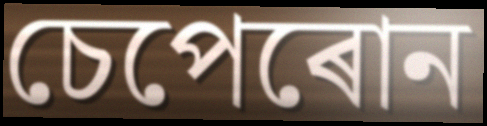
চেপেৰোন